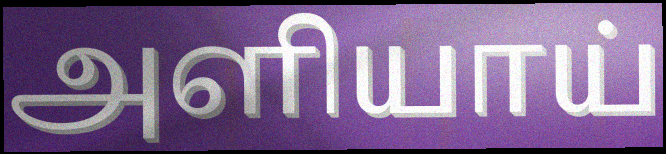
அளியாய்